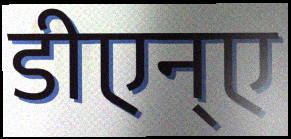
डीएन्ए